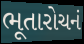
ભૂતારોચનં